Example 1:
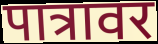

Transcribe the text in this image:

पात्रावर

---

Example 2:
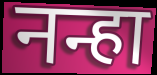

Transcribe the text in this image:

नन्हा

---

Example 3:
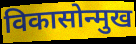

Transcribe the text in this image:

विकासोन्मुख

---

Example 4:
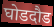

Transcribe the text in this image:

घोडदौड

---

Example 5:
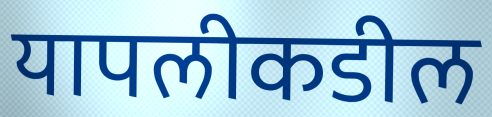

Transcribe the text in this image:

यापलीकडील